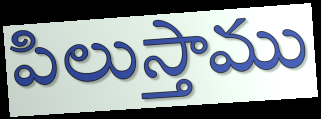
పిలుస్తాము